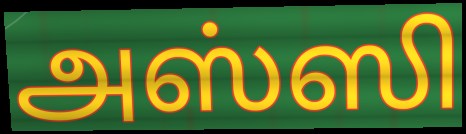
அஸ்ஸி